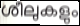
ശീലുകളും